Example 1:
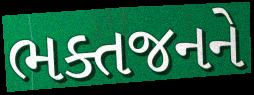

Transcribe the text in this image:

ભક્તજનને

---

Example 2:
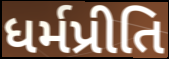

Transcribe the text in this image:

ધર્મપ્રીતિ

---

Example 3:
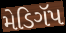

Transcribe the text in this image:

મેડિગૅપ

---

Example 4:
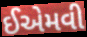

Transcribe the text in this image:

ઈએમવી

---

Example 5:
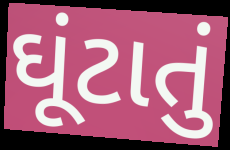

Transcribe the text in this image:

ઘૂંટાતું